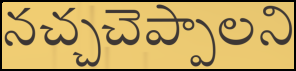
నచ్చచెప్పాలని